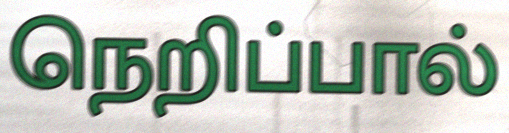
நெறிப்பால்